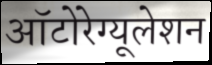
ऑटोरेग्यूलेशन